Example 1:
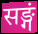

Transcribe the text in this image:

सङ्गं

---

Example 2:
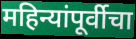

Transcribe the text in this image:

महिन्यांपूर्वीचा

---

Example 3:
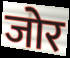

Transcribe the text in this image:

जोर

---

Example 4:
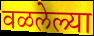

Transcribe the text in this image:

वळलेल्या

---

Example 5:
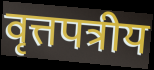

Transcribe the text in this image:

वृत्तपत्रीय